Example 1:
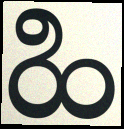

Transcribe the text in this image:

ಹಿ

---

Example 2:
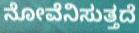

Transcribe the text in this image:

ನೋವೆನಿಸುತ್ತದೆ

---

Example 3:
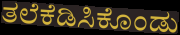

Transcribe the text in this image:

ತಲೆಕೆಡಿಸಿಕೊಂಡು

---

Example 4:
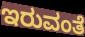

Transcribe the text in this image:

ಇರುವಂತೆ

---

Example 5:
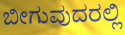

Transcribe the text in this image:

ಬೀಗುವುದರಲ್ಲಿ